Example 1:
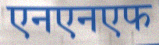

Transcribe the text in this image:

एनएनएफ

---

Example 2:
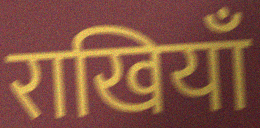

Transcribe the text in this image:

राखियाँ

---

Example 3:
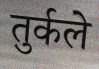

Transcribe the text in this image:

तुर्कले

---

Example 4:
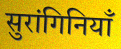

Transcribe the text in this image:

सुरांगिनियाँ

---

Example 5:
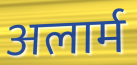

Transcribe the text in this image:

अलार्म